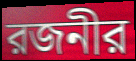
রজনীর